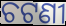
ଚଟଣୀ